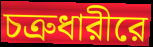
চত্রুধারীরে